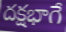
దక్షభాగే